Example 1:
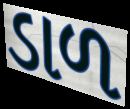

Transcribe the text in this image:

ડાળ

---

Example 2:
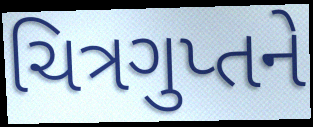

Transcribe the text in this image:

ચિત્રગુપ્તને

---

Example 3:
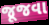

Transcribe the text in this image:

જૂજવા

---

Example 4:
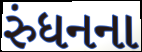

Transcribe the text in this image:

રુંધનના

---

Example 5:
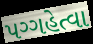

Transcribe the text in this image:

પગ્ગહેત્વા